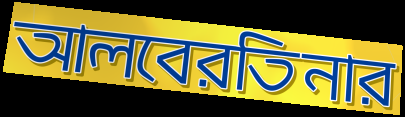
আলবেরতিনার